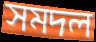
সমদল